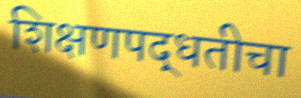
शिक्षणपद्धतीचा